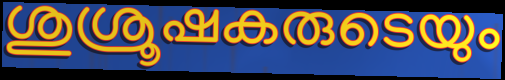
ശുശ്രൂഷകരുടെയും